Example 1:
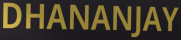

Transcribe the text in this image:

DHANANJAY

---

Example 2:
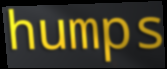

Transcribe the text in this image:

humps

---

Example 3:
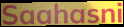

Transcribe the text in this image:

Saahasni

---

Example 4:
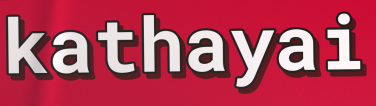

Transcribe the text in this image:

kathayai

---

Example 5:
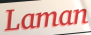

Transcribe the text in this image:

Laman